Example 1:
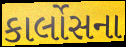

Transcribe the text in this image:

કાર્લોસના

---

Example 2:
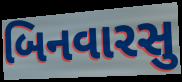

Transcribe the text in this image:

બિનવારસુ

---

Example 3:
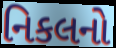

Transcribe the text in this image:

નિકલનો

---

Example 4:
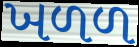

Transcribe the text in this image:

ખળળ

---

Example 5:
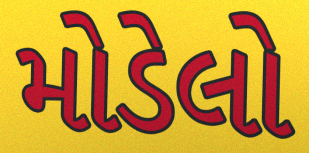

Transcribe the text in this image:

મોડેલો